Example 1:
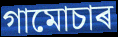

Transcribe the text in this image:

গামোচাৰ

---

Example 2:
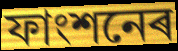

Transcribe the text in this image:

ফাংশনেৰ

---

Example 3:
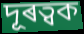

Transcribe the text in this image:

দূৰত্বক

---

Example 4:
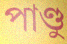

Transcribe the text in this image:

পাণ্ডু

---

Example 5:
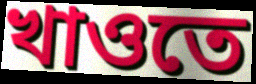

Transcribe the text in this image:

খাওতে